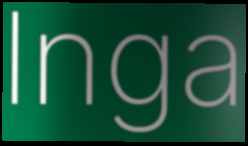
lnga